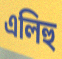
এলিহু